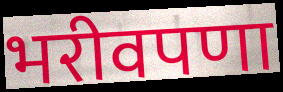
भरीवपणा